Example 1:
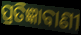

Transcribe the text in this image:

ପ୍ରତିଜ୍ଞାବାଣୀ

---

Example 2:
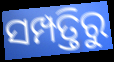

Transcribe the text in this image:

ସମ୍ପତ୍ତିରୁ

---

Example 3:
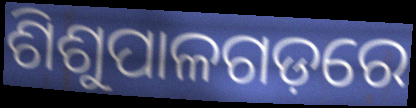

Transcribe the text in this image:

ଶିଶୁପାଳଗଡ଼ରେ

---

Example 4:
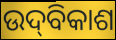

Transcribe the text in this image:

ଉଦ୍‌ବିକାଶ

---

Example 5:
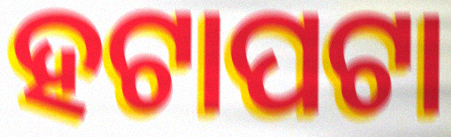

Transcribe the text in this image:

ହଟାପଟା